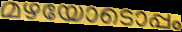
മഴയോടൊപ്പം